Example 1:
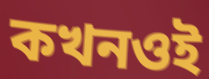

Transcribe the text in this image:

কখনওই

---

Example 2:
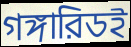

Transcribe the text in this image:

গঙ্গারিডই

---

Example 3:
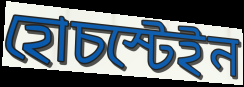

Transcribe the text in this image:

হোচস্টেইন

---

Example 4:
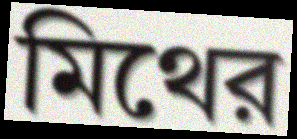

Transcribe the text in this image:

মিথের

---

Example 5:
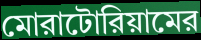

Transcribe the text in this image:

মোরাটোরিয়ামের